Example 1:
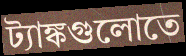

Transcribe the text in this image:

ট্যাঙ্কগুলোতে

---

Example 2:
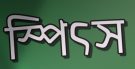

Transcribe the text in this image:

স্পিৎস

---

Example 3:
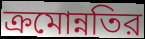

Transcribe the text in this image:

ক্রমোন্নতির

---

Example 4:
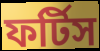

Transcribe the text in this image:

ফর্টিস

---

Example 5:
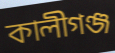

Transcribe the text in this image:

কালীগঞ্জ